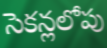
సెకన్లలోపు